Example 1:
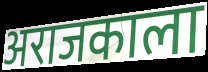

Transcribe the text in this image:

अराजकाला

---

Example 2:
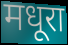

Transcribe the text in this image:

मधूरा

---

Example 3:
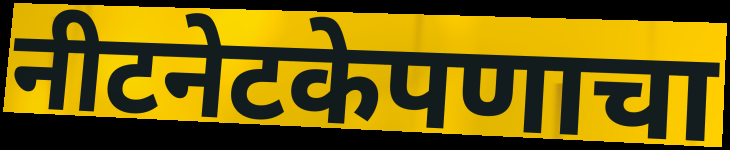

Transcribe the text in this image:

नीटनेटकेपणाचा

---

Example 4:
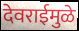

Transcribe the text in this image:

देवराईमुळे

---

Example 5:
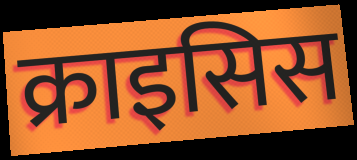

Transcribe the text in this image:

क्राइसिस